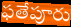
ఫతేపూరు